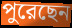
পুরেছেন